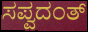
ಸಪ್ವದಂತ್